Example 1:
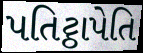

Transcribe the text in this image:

પતિટ્ઠાપેતિ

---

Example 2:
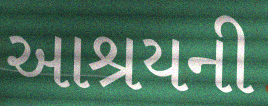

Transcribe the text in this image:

આશ્રયની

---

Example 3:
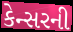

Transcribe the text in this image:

કેન્સરની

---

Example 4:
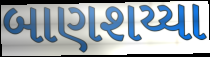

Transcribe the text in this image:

બાણશય્યા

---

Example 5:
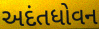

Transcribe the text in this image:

અદંતધોવન